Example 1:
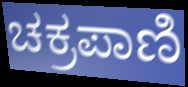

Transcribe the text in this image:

ಚಕ್ರಪಾಣಿ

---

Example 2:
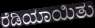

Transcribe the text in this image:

ರೆಡಿಯಾಯಿತು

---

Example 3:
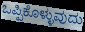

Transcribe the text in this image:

ಒಪ್ಪಿಕೊಳ್ಳುವುದು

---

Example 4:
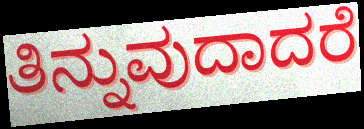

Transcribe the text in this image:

ತಿನ್ನುವುದಾದರೆ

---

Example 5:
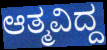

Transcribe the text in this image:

ಆತ್ಮವಿದ್ದ